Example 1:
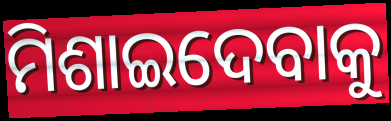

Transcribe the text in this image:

ମିଶାଇଦେବାକୁ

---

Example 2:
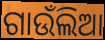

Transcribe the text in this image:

ଗାଉଁଲିଆ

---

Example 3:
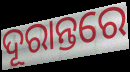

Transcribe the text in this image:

ଦୂରାନ୍ତରେ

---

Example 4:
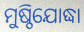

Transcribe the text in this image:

ମୁଷ୍ଠିଯୋଦ୍ଧା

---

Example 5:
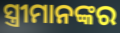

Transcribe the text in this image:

ସ୍ତ୍ରୀମାନଙ୍କର